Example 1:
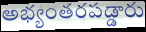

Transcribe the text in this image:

అభ్యంతరపడ్డారు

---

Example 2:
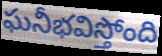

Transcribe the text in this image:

ఘనీభవిస్తోంది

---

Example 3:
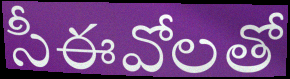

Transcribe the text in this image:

సీఈవోలతో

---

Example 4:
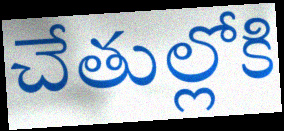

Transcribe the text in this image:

చేతుల్లోకి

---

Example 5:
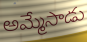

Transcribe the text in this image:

అమ్మేసాడు